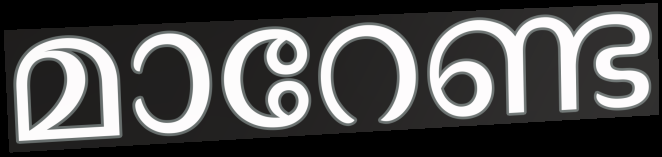
മാറേണ്ട